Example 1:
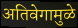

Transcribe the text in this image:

अतिवेगामुळे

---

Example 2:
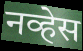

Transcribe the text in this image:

नव्हेस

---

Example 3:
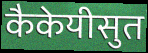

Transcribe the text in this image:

कैकेयीसुत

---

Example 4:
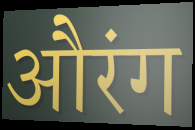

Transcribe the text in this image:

औरंग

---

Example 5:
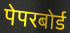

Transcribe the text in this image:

पेपरबोर्ड